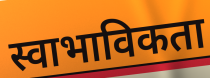
स्वाभाविकता